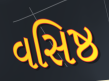
વસિષ્ઠ